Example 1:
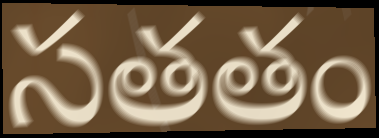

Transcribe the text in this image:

సతతం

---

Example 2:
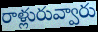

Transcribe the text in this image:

రాళ్లురువ్వారు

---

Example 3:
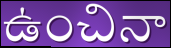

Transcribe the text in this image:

ఉంచినా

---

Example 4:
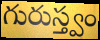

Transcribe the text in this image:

గురుస్త్వం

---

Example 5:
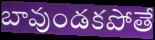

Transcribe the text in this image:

బావుండకపోతే